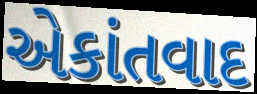
એકાંતવાદ